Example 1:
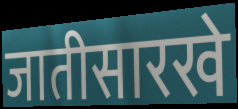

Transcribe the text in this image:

जातीसारखे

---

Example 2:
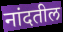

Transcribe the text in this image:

नांदतील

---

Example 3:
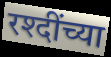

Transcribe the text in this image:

रश्दींच्या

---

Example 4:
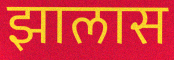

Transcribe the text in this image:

झालास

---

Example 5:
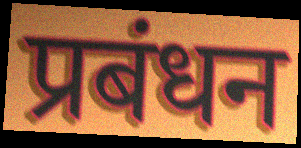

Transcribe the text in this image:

प्रबंधन